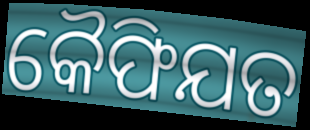
କୈଫିଯତ